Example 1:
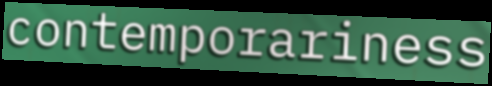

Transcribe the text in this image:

contemporariness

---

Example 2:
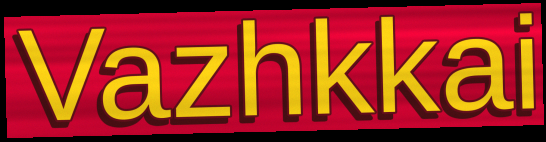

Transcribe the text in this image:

Vazhkkai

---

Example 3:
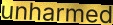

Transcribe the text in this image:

unharmed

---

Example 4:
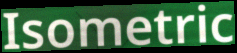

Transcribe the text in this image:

Isometric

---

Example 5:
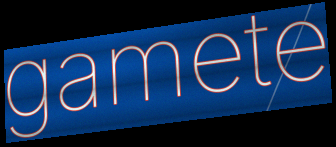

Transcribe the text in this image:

gamete